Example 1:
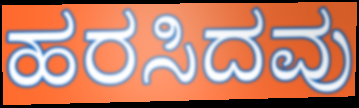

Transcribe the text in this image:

ಹರಸಿದವು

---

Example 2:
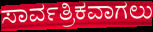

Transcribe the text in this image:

ಸಾರ್ವತ್ರಿಕವಾಗಲು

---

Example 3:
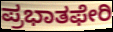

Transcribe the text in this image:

ಪ್ರಭಾತಫೇರಿ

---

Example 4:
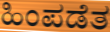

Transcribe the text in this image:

ಹಿಂಪಡೆತ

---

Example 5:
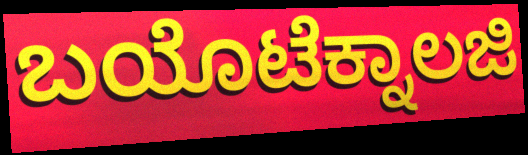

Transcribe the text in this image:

ಬಯೊಟೆಕ್ನಾಲಜಿ